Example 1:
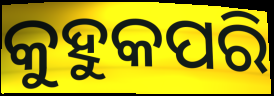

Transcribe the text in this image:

କୁହୁକପରି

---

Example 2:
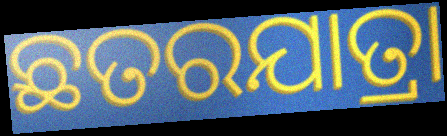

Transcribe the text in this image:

ଛତରଯାତ୍ରା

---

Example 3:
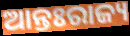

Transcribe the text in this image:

ଆନ୍ତଃରାଜ୍ୟ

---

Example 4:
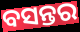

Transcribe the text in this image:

ବସନ୍ତର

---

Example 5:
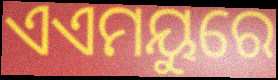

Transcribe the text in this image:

ଏଏମୟୁରେ